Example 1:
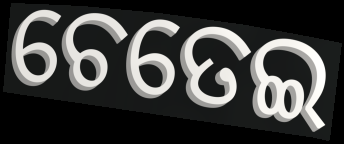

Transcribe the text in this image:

ଚେତେଇ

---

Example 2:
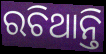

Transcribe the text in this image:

ରଚିଥାନ୍ତି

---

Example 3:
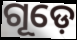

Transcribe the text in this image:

ଗୂଡ଼େ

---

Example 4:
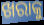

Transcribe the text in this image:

ଖରାକୁ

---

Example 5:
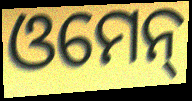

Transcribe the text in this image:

ଓମେନ୍